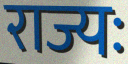
राज्यः